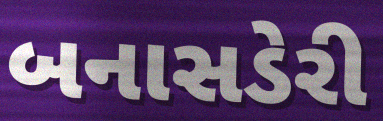
બનાસડેરી